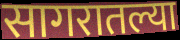
सागरातल्या